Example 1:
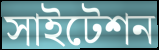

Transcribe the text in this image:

সাইটেশন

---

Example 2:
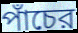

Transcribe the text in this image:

পাঁচের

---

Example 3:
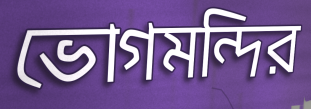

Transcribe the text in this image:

ভোগমন্দির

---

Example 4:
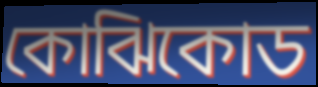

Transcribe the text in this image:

কোঝিকোড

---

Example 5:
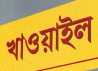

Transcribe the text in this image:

খাওয়াইল